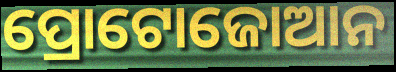
ପ୍ରୋଟୋଜୋଆନ